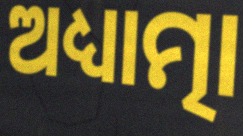
ଅଧ୍ୟାତ୍ମା